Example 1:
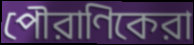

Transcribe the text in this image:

পৌরাণিকেরা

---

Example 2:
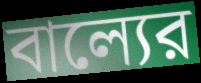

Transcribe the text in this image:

বাল্যের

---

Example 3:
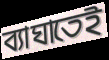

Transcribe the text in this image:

ব্যাঘাতেই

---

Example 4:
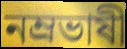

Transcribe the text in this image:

নম্রভাষী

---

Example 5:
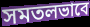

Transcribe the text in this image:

সমতলভাবে